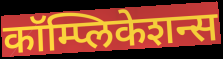
कॉम्प्लिकेशन्स